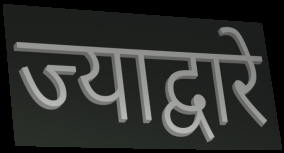
ज्याद्वारे